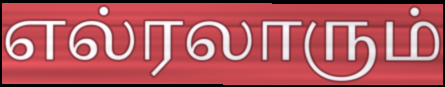
எல்ரலாரும்